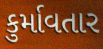
કુર્માવતાર